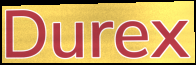
Durex